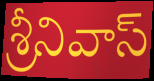
శ్రీనివాస్